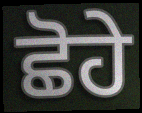
ਛੋਹੇ